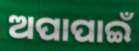
ଅପାପାଇଁ